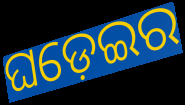
ଘଡ଼େଇର